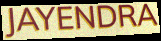
JAYENDRA